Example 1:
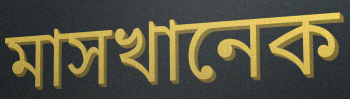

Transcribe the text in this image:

মাসখানেক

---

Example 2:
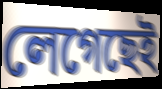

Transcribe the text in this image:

লেগেছেই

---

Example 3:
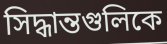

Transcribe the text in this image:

সিদ্ধান্তগুলিকে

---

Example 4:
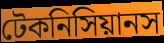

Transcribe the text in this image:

টেকনিসিয়ানস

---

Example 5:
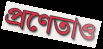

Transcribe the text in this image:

প্রণেতাও